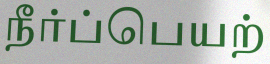
நீர்ப்பெயற்